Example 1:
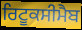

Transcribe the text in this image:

ਰਿਟੂਕਸੀਮੈਬ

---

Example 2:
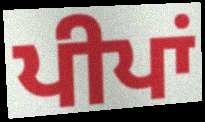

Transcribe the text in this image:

ਪੀਪਾਂ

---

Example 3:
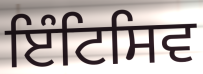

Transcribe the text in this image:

ਇੰਟਿਸਿਵ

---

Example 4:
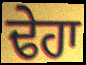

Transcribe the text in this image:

ਢੇਹਾ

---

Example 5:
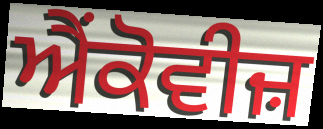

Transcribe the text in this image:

ਐਂਕੋਵੀਜ਼